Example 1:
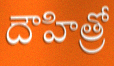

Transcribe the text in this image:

దౌహిత్రో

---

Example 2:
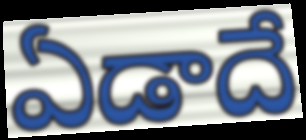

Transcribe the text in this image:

ఏడాదే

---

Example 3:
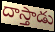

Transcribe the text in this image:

దాస్తాడు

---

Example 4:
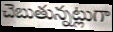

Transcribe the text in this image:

చెబుతున్నట్లుగా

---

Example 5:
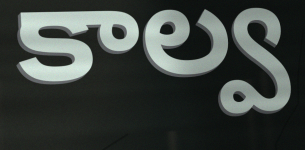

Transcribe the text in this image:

కాల్వ